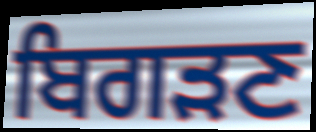
ਬਿਗੜਣ